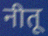
नीतू